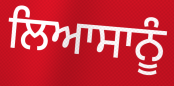
ਲਿਆਸਾਨੂੰ